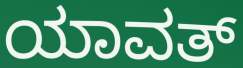
ಯಾವತ್